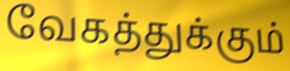
வேகத்துக்கும்